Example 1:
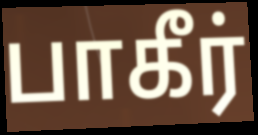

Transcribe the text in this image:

பாகீர்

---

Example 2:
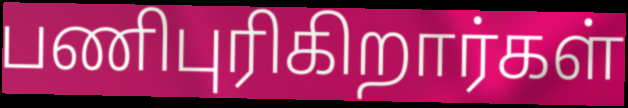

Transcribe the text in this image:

பணிபுரிகிறார்கள்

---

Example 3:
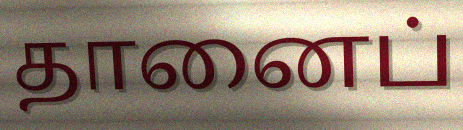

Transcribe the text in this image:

தானைப்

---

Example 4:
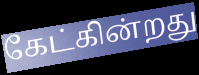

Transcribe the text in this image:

கேட்கின்றது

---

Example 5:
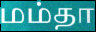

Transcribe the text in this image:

மம்தா